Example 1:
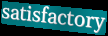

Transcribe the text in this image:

satisfactory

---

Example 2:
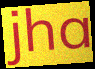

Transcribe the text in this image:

jha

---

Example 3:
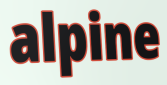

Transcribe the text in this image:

alpine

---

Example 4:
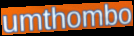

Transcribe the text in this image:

umthombo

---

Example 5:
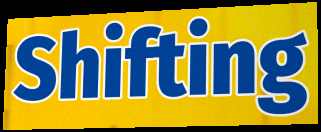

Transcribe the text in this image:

Shifting